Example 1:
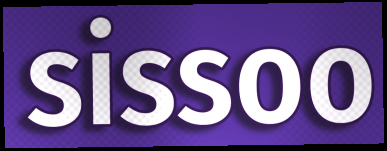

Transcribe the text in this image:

sissoo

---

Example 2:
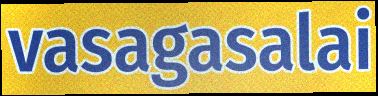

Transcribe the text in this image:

vasagasalai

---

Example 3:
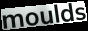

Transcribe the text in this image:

moulds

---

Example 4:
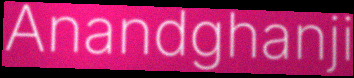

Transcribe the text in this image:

Anandghanji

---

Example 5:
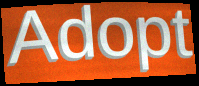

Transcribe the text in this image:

Adopt